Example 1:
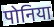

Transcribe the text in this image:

पोनिया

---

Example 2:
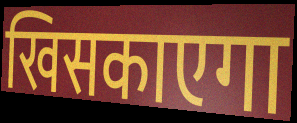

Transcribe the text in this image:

खिसकाएगा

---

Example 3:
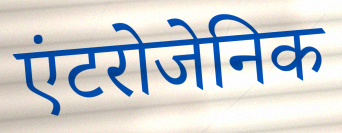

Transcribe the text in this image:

एंटरोजेनिक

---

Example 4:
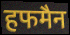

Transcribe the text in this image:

हफमैन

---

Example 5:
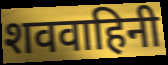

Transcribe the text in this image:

शववाहिनी